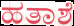
ಹತಾಶೆ